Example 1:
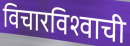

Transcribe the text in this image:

विचारविश्वाची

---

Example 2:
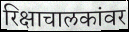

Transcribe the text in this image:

रिक्षाचालकांवर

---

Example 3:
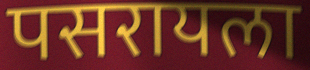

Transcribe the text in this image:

पसरायला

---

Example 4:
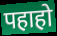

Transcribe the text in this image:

पहाहो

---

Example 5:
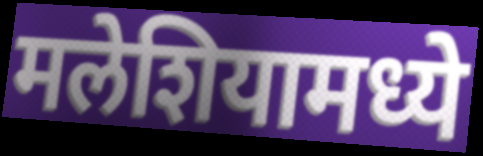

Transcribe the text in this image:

मलेशियामध्ये